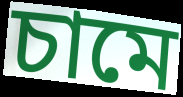
চামে